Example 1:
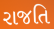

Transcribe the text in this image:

રાજતિ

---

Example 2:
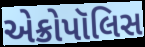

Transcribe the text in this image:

એક્રોપૉલિસ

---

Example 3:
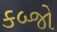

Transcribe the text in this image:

કબ્જો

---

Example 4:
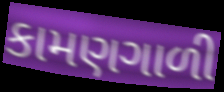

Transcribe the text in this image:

કામણગાળી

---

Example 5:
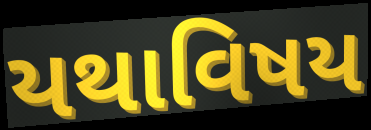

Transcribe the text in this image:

યથાવિષય